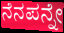
ನೆನಪನ್ನೇ